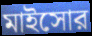
মাইসোর